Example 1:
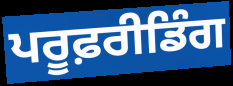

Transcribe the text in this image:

ਪਰੂਫ਼ਰੀਡਿੰਗ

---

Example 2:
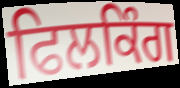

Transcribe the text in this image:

ਫਿਲਕਿੰਗ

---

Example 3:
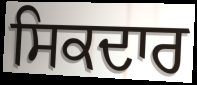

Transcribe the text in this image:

ਸਿਕਦਾਰ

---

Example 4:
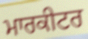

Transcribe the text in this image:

ਮਾਰਕੀਟਰ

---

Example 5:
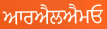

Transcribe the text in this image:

ਆਰਐਲਐਮਓ